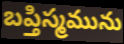
బప్తిస్మమును